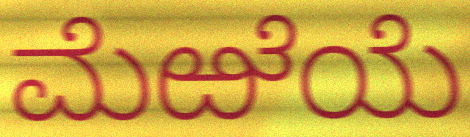
ಮೆಱೆಯೆ